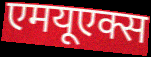
एमयूएक्स